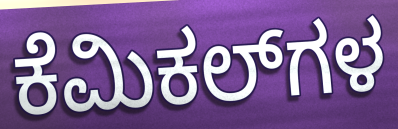
ಕೆಮಿಕಲ್‌ಗಳ